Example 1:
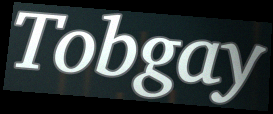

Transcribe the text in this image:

Tobgay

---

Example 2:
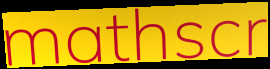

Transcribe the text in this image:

mathscr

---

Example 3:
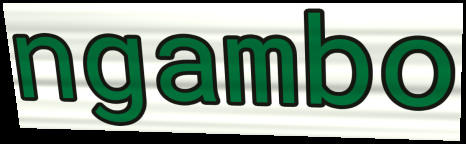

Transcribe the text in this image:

ngambo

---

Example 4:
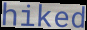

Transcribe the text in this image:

hiked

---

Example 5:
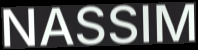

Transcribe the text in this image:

NASSIM